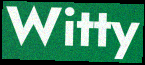
Witty